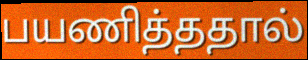
பயணித்ததால்